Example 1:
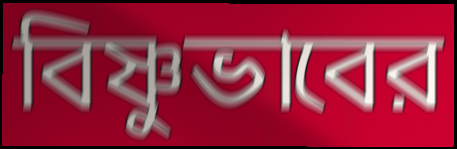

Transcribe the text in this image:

বিষ্ণুভাবের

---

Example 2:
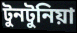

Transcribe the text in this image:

টুনটুনিয়া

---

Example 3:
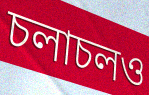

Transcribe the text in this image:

চলাচলও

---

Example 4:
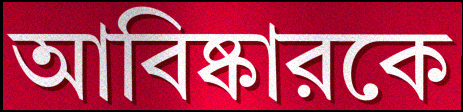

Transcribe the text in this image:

আবিষ্কারকে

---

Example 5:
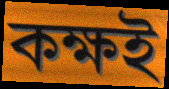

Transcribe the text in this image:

কক্ষই